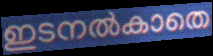
ഇടനൽകാതെ